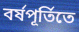
বর্ষপূর্তিতে